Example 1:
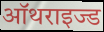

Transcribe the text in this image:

ऑथराइज्ड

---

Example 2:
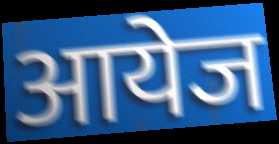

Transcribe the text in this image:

आयेज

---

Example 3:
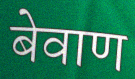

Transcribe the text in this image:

बेवाण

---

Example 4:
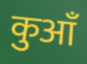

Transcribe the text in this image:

कुआँ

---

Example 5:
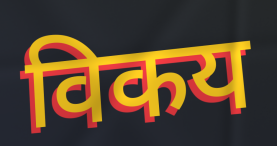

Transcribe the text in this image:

विकय